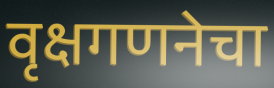
वृक्षगणनेचा